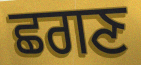
ਛਗਣ